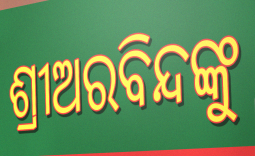
ଶ୍ରୀଅରବିନ୍ଦଙ୍କୁ